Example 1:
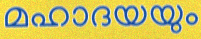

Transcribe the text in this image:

മഹാദയയും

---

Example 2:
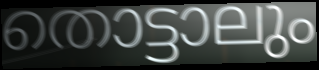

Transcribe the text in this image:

തൊട്ടാലും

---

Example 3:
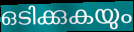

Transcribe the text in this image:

ഒടിക്കുകയും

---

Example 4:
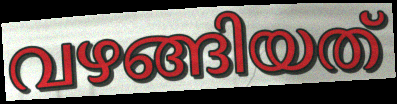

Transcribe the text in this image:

വഴങ്ങിയത്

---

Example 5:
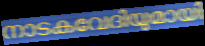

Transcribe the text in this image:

നാടകവേദിയുമായി